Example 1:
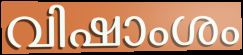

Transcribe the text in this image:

വിഷാംശം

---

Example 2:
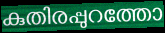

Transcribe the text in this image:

കുതിരപ്പുറത്തോ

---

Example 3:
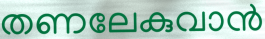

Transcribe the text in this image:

തണലേകുവാൻ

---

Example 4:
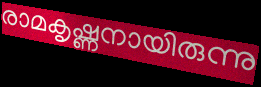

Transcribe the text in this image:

രാമകൃഷ്ണനായിരുന്നു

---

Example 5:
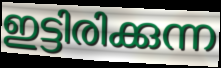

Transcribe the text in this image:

ഇട്ടിരിക്കുന്ന